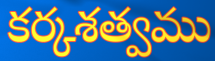
కర్కశత్వము